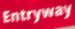
Entryway